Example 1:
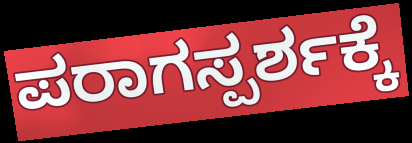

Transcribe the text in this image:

ಪರಾಗಸ್ಪರ್ಶಕ್ಕೆ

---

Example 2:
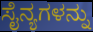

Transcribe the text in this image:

ಸೈನ್ಯಗಳನ್ನು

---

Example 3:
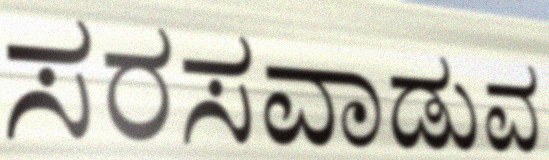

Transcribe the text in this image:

ಸರಸವಾಡುವ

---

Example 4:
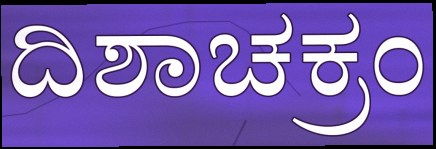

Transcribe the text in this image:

ದಿಶಾಚಕ್ರಂ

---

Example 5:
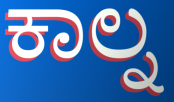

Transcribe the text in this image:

ಕಾಲ್ನ